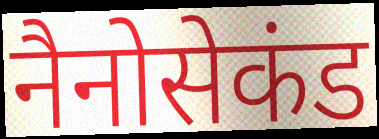
नैनोसेकंड